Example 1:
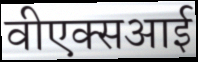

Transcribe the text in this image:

वीएक्सआई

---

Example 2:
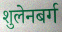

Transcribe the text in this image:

शुलेनबर्ग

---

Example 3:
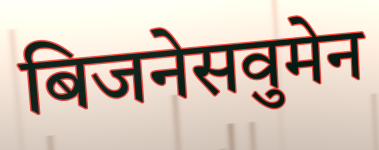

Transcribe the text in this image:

बिजनेसवुमेन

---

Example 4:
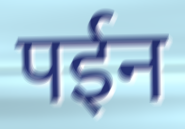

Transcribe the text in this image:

पईन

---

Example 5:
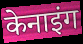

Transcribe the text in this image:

केनाइंग